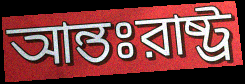
আন্তঃরাষ্ট্র